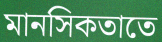
মানসিকতাতে